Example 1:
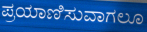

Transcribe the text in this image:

ಪ್ರಯಾಣಿಸುವಾಗಲೂ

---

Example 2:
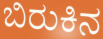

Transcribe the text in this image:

ಬಿರುಕಿನ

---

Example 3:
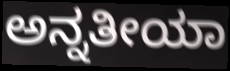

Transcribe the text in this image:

ಅನ್ನತೀಯಾ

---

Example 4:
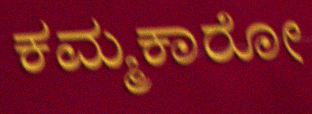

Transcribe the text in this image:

ಕಮ್ಮಕಾರೋ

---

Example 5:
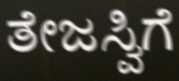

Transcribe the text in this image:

ತೇಜಸ್ವಿಗೆ